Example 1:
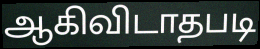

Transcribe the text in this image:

ஆகிவிடாதபடி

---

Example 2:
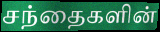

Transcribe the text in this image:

சந்தைகளின்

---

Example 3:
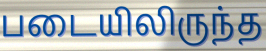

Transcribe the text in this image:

படையிலிருந்த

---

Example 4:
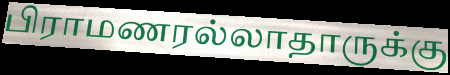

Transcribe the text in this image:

பிராமணரல்லாதாருக்கு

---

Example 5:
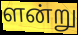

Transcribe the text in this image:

ளன்று